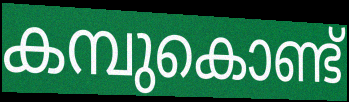
കമ്പുകൊണ്ട്